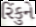
રિંકુને